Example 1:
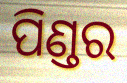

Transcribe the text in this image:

ପିଣ୍ଡର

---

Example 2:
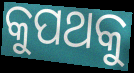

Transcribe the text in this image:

କୁପଥକୁ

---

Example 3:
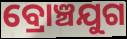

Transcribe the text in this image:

ବ୍ରୋଞ୍ଚଯୁଗ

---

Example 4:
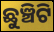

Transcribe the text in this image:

ଛୁଞ୍ଚିଟି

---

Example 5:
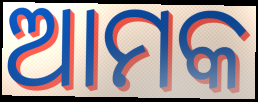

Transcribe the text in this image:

ଆମକ